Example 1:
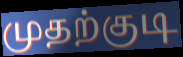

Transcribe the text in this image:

முதற்குடி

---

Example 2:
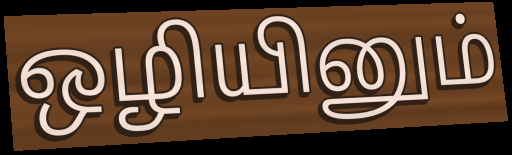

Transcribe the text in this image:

ஒழியினும்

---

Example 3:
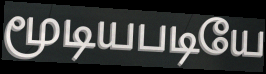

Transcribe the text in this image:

மூடியபடியே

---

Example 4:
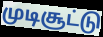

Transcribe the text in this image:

முடிசூட்டு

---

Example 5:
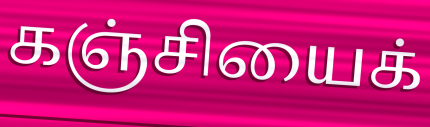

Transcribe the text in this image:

கஞ்சியைக்